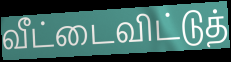
வீட்டைவிட்டுத்